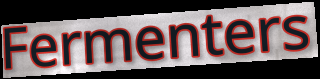
Fermenters